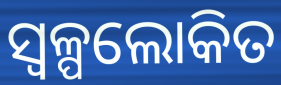
ସ୍ୱଳ୍ପଲୋକିତ